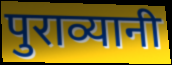
पुराव्यानी